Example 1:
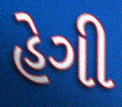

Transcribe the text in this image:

હેગી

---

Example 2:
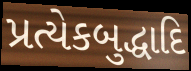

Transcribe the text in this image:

પ્રત્યેકબુદ્ધાદિ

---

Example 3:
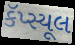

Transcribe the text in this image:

કૅપ્સ્યૂલ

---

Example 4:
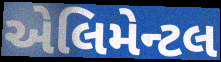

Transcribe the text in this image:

એલિમેન્ટલ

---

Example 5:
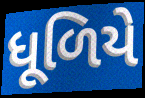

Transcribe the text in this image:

ધૂળિયે